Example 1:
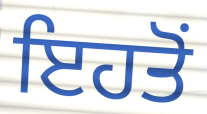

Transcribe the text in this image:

ਇਹਤੋਂ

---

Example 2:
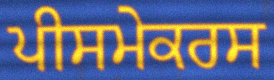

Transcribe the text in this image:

ਪੀਸਮੇਕਰਸ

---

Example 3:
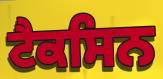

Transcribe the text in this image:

ਟੈਕਸਿਨ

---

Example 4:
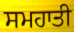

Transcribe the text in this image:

ਸਮਹਾਤੀ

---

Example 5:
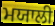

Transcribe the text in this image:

ਮਯਾਲੀ